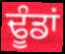
ਢੂੰਡਾਂ